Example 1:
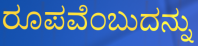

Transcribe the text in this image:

ರೂಪವೆಂಬುದನ್ನು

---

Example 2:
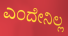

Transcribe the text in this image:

ಎಂದೇನಿಲ್ಲ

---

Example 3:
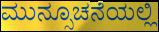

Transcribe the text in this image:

ಮುನ್ಸೂಚನೆಯಲ್ಲಿ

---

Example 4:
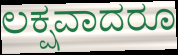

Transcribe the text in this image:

ಲಕ್ಷವಾದರೂ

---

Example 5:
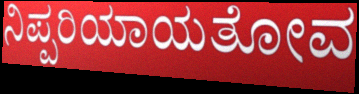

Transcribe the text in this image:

ನಿಪ್ಪರಿಯಾಯತೋವ